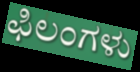
ಫಿಲಂಗಳು